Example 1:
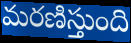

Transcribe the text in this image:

మరణిస్తుంది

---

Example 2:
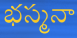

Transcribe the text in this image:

భస్మనా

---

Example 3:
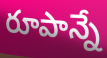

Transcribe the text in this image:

రూపాన్నే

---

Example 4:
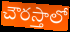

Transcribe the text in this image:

చౌరస్తాలో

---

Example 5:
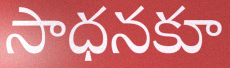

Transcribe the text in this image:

సాధనకూ